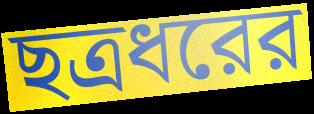
ছত্রধরের